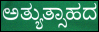
ಅತ್ಯುತ್ಸಾಹದ